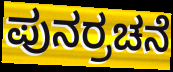
ಪುನರ್ರಚನೆ